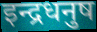
इन्द्रधनुष